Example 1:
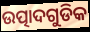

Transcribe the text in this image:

ଉତ୍ପାଦଗୁଡିକ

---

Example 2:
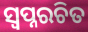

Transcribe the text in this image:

ସ୍ୱପ୍ନରଚିତ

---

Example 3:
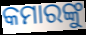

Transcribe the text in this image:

କମାରଙ୍କୁ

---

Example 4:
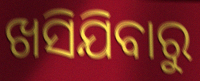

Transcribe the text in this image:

ଖସିଯିବାରୁ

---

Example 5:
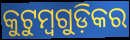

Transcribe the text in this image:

କୁଟୁମ୍ବଗୁଡ଼ିକର